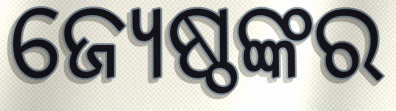
ଜ୍ୟେଷ୍ଠଙ୍କର